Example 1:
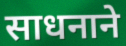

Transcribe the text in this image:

साधनाने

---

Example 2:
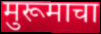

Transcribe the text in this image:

मुरूमाचा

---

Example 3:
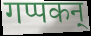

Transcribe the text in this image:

गप्पकन्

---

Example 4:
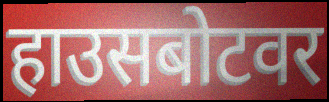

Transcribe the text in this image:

हाउसबोटवर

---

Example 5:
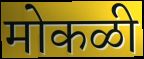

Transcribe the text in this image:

मोकळी